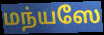
மந்யஸே